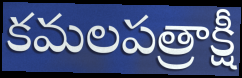
కమలపత్రాక్షీ